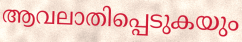
ആവലാതിപ്പെടുകയും